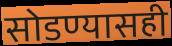
सोडण्यासही